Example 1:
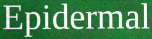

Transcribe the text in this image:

Epidermal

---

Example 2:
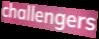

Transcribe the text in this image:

challengers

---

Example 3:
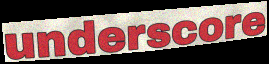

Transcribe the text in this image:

underscore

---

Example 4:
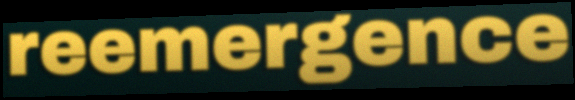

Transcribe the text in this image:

reemergence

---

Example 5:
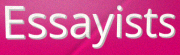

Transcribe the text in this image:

Essayists